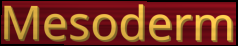
Mesoderm